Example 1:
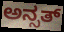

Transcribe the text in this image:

ಅನ್ಸತ್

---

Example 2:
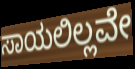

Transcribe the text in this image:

ಸಾಯಲಿಲ್ಲವೇ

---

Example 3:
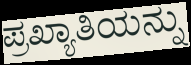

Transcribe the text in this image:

ಪ್ರಖ್ಯಾತಿಯನ್ನು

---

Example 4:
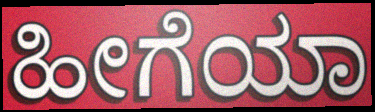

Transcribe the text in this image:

ಹೀಗೆಯಾ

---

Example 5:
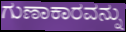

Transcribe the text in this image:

ಗುಣಾಕಾರವನ್ನು